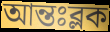
আন্তঃব্লক